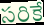
సరికే